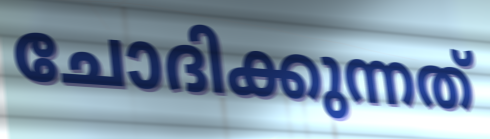
ചോദിക്കുന്നത്